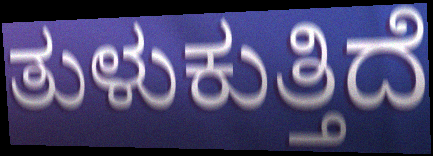
ತುಳುಕುತ್ತಿದೆ